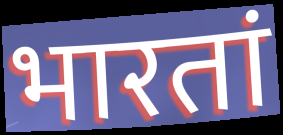
भारतां